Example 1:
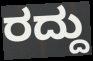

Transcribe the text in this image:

ರದ್ದು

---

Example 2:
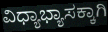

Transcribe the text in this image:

ವಿಧ್ಯಾಭ್ಯಾಸಕ್ಕಾಗಿ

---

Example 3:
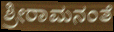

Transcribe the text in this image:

ಶ್ರೀರಾಮನಂತೆ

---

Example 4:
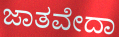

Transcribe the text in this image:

ಜಾತವೇದಾ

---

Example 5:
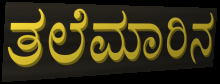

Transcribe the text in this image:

ತಲೆಮಾರಿನ